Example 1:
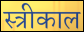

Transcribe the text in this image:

स्त्रीकाल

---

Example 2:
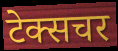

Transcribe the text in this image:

टेक्सचर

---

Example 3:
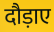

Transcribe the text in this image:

दौड़ाए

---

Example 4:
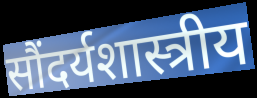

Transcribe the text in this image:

सौंदर्यशास्त्रीय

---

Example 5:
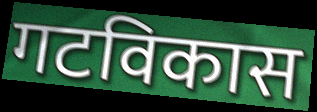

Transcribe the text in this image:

गटविकास